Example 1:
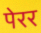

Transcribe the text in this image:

पेरर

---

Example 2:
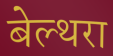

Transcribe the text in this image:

बेल्थरा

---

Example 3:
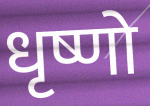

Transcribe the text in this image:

धृष्णो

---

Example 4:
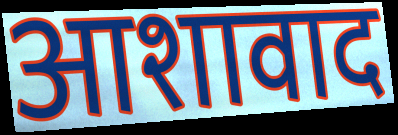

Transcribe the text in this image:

आशावाद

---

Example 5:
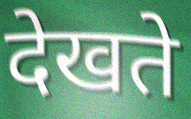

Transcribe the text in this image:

देखते